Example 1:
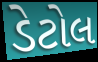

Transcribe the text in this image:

ડેટોલ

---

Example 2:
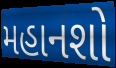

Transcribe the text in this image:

મહાનશો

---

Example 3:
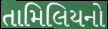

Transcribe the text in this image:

તામિલિયનો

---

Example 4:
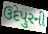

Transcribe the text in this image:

ઉદેપુરની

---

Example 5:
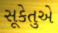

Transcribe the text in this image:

સૂકેતુએ